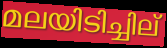
മലയിടിച്ചില്